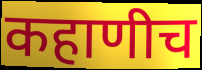
कहाणीच